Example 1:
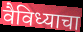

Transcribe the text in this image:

वैविध्याचा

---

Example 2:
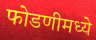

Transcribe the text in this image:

फोडणीमध्ये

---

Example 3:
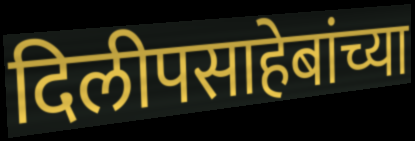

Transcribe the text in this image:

दिलीपसाहेबांच्या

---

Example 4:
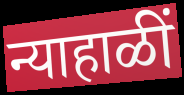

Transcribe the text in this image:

न्याहाळीं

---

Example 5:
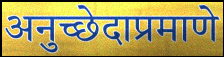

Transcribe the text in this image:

अनुच्छेदाप्रमाणे